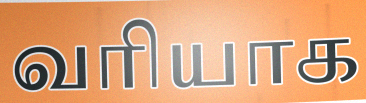
வரியாக